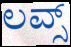
ಲವ್ಸ್